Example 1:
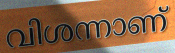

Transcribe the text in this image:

വിശന്നാണ്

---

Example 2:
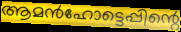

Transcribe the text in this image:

ആമൻഹോട്ടെപ്പിന്റെ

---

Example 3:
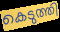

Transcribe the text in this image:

കെടുത്തി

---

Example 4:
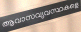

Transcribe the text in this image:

ആവാസവ്യവസ്ഥകളെ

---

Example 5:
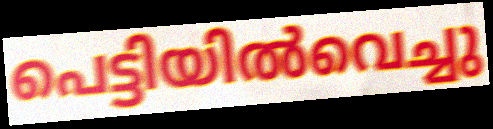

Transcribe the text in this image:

പെട്ടിയിൽവെച്ചു